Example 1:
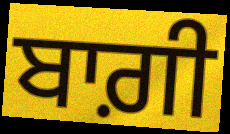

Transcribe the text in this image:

ਬਾਗ਼ੀ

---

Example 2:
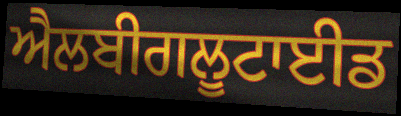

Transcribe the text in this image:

ਐਲਬੀਗਲੂਟਾਈਡ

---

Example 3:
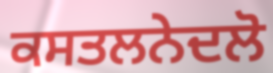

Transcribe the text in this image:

ਕਸਤਲਨੇਦਲੋ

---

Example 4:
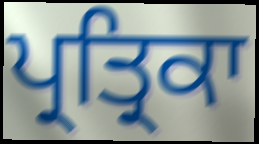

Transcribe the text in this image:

ਪ੍ਰਤ੍ਰਿਕਾ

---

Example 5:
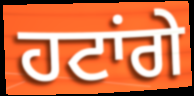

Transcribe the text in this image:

ਹਟਾਂਗੇ